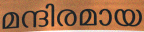
മന്ദിരമായ